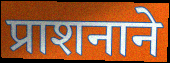
प्राशनाने